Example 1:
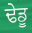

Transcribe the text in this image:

ਢੇਡੂ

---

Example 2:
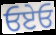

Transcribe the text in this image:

ਓਏਓ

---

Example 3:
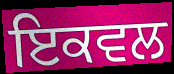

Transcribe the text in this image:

ਇਕਵਲ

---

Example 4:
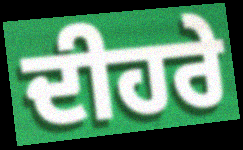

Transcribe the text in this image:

ਦੀਹਰੇ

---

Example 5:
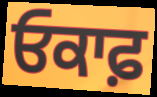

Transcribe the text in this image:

ਓਕਾਫ਼